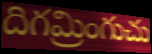
దిగమ్రింగుచు